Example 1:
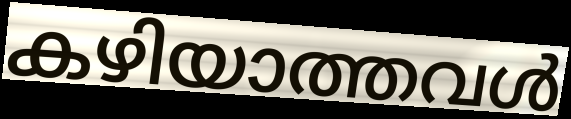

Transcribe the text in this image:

കഴിയാത്തവൾ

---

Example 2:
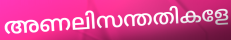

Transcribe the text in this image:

അണലിസന്തതികളേ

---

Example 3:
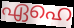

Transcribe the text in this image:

ഏഹെ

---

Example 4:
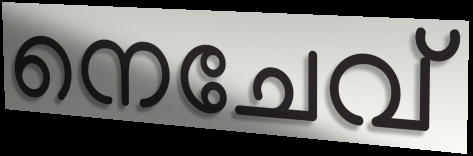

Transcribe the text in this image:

നെചേവ്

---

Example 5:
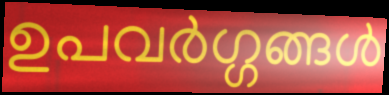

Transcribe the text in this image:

ഉപവർഗ്ഗങ്ങൾ